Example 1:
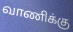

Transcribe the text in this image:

வாணிக்கு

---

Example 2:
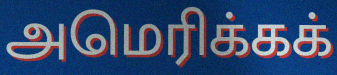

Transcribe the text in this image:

அமெரிக்கக்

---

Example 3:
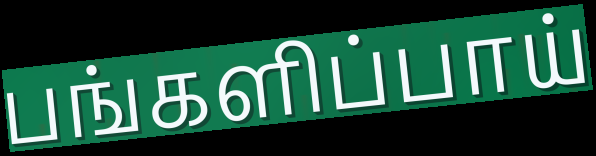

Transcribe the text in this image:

பங்களிப்பாய்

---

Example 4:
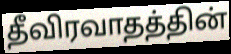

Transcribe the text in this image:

தீவிரவாதத்தின்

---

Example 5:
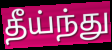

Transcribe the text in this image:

தீய்ந்து